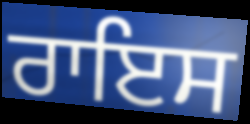
ਰਾਇਸ